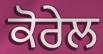
ਕੋਰੇਲ